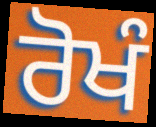
ਰੋਖੰ